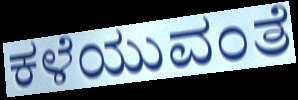
ಕಳೆಯುವಂತೆ